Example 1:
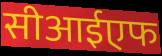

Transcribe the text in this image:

सीआईएफ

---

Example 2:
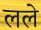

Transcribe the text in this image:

लले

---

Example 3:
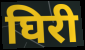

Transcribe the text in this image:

घिरी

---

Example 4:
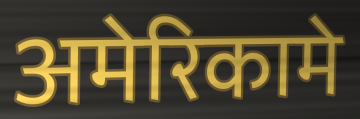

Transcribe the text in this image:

अमेरिकामे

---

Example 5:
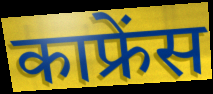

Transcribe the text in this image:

काफ्रेंस